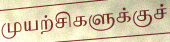
முயற்சிகளுக்குச்